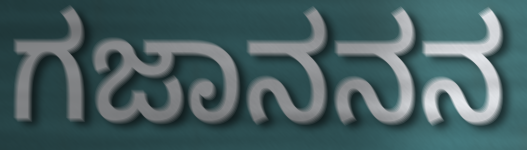
ಗಜಾನನನ